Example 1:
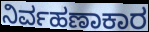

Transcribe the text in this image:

ನಿರ್ವಹಣಾಕಾರ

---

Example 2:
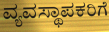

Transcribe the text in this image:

ವ್ಯವಸ್ಥಾಪಕರಿಗೆ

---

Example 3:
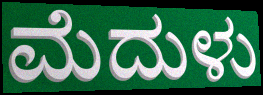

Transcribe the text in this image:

ಮೆದುಳು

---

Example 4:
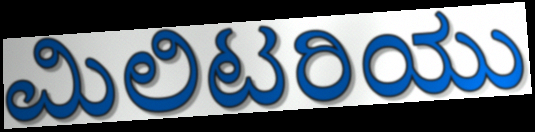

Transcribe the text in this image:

ಮಿಲಿಟರಿಯು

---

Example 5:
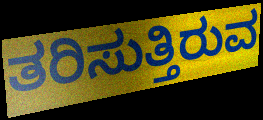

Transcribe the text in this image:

ತರಿಸುತ್ತಿರುವ